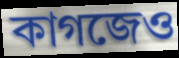
কাগজেও